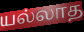
யல்லாத